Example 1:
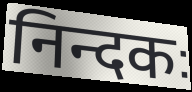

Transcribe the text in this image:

निन्दकः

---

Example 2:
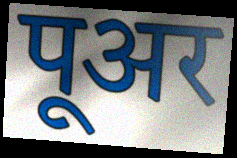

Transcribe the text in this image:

पूअर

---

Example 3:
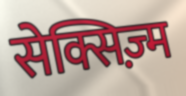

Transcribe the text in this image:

सेक्सिज़्म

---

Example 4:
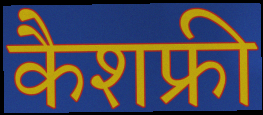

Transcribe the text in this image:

कैशफ्री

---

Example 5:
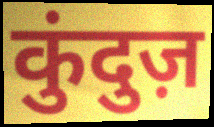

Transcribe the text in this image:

कुंदुज़